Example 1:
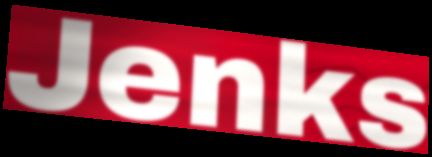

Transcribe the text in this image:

Jenks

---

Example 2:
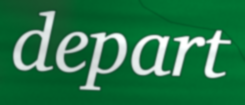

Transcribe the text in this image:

depart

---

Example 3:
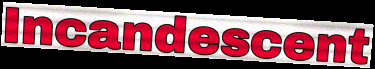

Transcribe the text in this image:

Incandescent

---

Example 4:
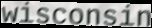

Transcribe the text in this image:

wisconsin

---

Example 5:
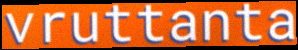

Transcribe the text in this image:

vruttanta